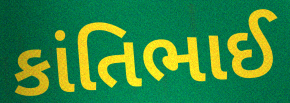
કાંતિભાઈ